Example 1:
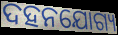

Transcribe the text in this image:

ଦହନଯୋଗ୍ୟ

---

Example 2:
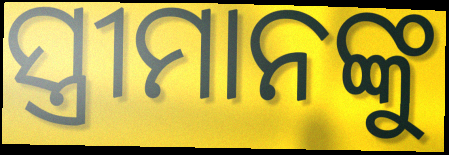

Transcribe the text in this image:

ସ୍ତ୍ରୀମାନଙ୍କୁ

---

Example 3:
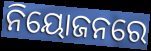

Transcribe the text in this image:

ନିୟୋଜନରେ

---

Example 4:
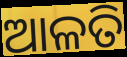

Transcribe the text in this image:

ଆଳତି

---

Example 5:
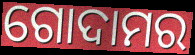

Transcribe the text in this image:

ଗୋଦାମର